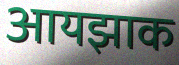
आयझाक